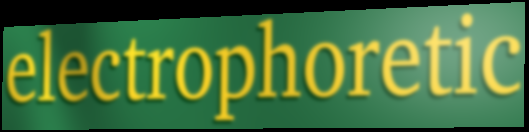
electrophoretic